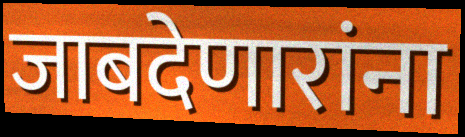
जाबदेणारांना